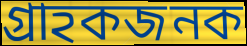
গ্ৰাহকজনক